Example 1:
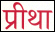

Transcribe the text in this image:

प्रीथा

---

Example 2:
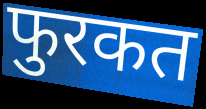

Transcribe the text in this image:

फुरकत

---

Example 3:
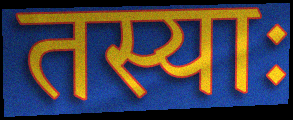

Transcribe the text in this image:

तस्याः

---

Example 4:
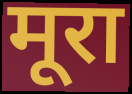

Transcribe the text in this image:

मूरा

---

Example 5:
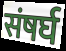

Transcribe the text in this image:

संषर्घ